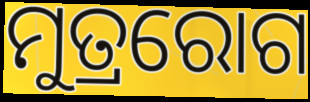
ମୁତ୍ରରୋଗ